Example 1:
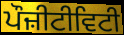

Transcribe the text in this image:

ਪੌਜ਼ੀਟੀਵਿਟੀ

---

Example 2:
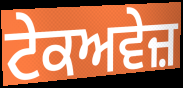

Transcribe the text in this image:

ਟੇਕਅਵੇਜ਼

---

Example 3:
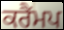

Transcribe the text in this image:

ਕਰੈਂਮਪ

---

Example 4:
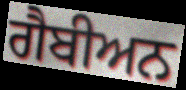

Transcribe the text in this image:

ਗੈਬੀਅਨ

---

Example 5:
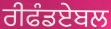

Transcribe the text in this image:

ਰੀਫੰਡਏਬਲ